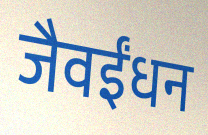
जैवईंधन